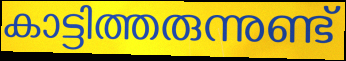
കാട്ടിത്തരുന്നുണ്ട്